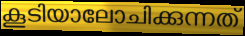
കൂടിയാലോചിക്കുന്നത്